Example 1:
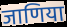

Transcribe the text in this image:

जाणिया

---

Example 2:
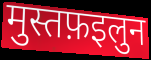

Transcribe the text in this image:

मुस्तफ़इलुन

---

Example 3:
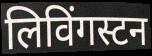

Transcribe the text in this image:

लिविंगस्टन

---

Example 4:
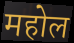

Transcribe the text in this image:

महोल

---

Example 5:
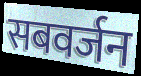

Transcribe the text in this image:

सबवर्जन